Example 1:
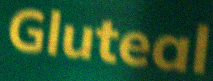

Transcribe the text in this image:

Gluteal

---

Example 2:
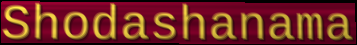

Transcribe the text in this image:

Shodashanama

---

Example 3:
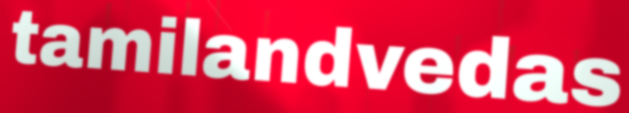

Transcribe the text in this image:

tamilandvedas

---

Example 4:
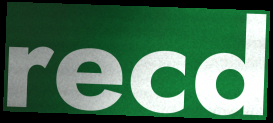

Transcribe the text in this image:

recd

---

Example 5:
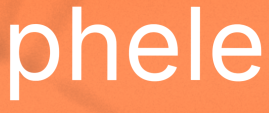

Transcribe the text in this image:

phele